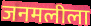
जनमलीला